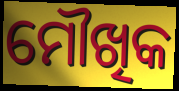
ମୌଖିକ